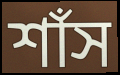
শাঁস